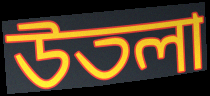
উতলা